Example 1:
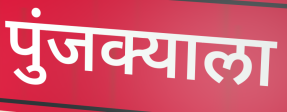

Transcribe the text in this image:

पुंजक्याला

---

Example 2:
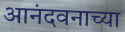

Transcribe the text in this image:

आनंदवनाच्या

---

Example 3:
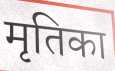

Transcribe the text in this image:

मृतिका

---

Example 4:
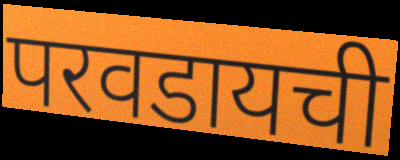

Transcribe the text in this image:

परवडायची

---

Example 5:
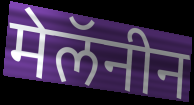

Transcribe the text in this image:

मेलॅनीन